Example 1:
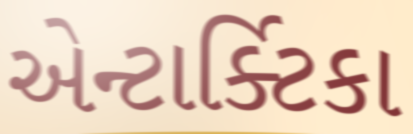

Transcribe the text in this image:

એન્ટાર્ક્ટિકા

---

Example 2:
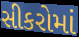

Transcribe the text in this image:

સીકરોમાં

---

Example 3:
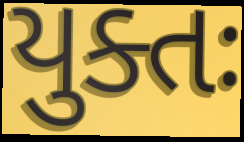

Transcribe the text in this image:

યુક્તઃ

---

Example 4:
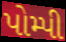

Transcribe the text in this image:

પોમ્પી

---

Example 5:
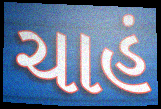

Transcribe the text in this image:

ચાહં